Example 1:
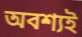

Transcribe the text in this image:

অবশ্যই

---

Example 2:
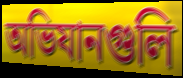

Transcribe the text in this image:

অভিযানগুলি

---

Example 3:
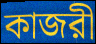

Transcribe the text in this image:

কাজরী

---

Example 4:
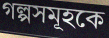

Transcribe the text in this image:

গল্পসমূহকে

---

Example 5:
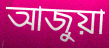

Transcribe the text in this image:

আজুয়া